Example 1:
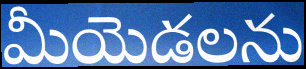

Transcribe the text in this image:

మీయెడలను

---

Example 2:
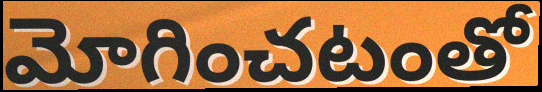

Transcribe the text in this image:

మోగించటంతో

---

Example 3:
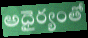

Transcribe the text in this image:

అధైర్యంతో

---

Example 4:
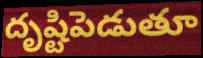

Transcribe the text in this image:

దృష్టిపెడుతూ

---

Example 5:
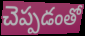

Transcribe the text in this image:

చెప్పడంతో